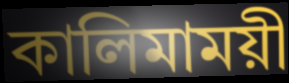
কালিমাময়ী